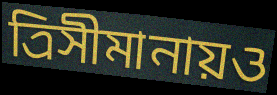
ত্রিসীমানায়ও